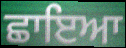
ਛਾਇਆ